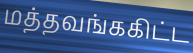
மத்தவங்ககிட்ட